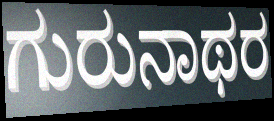
ಗುರುನಾಥರ